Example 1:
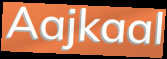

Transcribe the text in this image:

Aajkaal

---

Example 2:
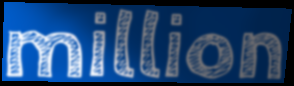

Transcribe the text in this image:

million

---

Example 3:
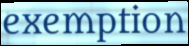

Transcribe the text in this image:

exemption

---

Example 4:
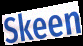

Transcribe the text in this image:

Skeen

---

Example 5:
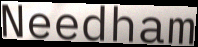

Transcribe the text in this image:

Needham